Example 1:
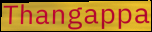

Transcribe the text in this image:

Thangappa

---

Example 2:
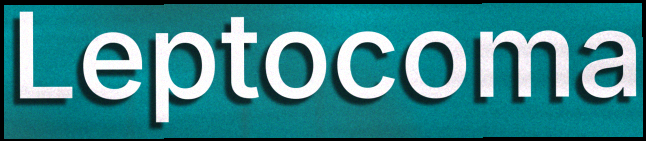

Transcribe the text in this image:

Leptocoma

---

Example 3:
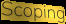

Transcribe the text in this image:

Scoping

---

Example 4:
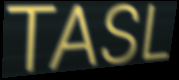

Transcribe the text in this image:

TASL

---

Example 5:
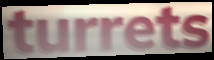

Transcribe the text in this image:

turrets